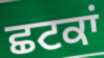
ਛਟਕਾਂ